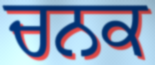
ਚਨਕ